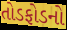
તોડફોડનો